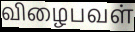
விழைபவள்